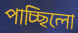
পাচ্ছিলো